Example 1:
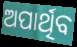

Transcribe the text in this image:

ଅପାର୍ଥିବ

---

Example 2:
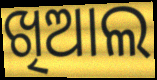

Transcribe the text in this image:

ଖିଆଲ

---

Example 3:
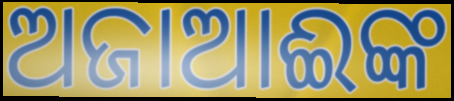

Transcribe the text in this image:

ଅଜାଆଈଙ୍କ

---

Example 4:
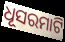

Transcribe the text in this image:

ଧୂସରମାଟି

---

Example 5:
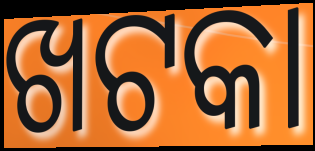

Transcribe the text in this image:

ଖଟକା